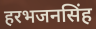
हरभजनसिंह